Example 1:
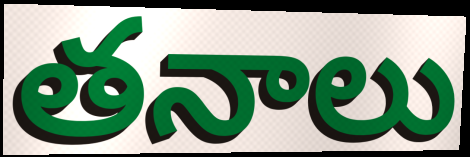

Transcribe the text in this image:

తనాలు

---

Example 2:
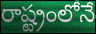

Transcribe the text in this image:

రాష్ట్రంలోనే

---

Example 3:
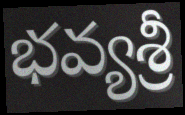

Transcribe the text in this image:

భవ్యశ్రీ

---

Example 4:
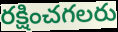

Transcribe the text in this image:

రక్షించగలరు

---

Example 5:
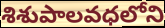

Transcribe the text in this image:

శిశుపాలవధలోని